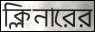
ক্লিনারের